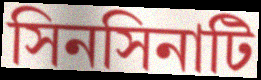
সিনসিনাটি